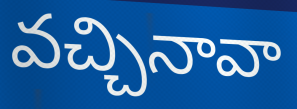
వచ్చినావా